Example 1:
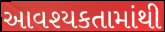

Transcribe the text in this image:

આવશ્યકતામાંથી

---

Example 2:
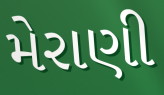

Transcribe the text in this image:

મેરાણી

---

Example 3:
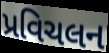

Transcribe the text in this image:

પ્રવિચલન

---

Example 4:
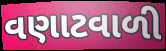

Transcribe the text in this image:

વણાટવાળી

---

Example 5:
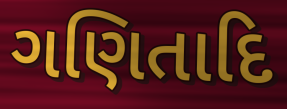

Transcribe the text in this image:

ગણિતાદિ